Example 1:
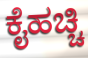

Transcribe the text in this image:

ಕೈಹಚ್ಚಿ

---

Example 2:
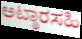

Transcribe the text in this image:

ಅಟ್ಠಾರಸಹಿ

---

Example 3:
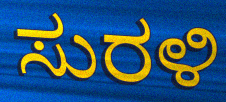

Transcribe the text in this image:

ಸುರಳಿ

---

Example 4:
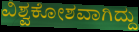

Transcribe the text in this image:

ವಿಶ್ವಕೋಶವಾಗಿದ್ದು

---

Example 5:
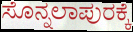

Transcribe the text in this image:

ಸೊನ್ನಲಾಪುರಕ್ಕೆ